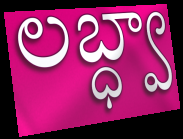
లబ్ధ్వా